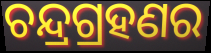
ଚନ୍ଦ୍ରଗ୍ରହଣର